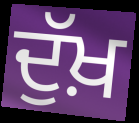
ਦੁੱਖ਼